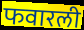
फवारली